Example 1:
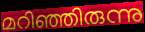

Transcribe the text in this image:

മറിഞ്ഞിരുന്നു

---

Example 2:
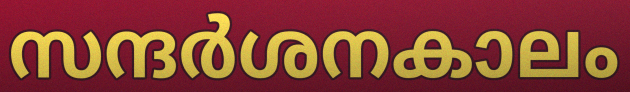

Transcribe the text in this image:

സന്ദർശനകാലം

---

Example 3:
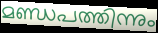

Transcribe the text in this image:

മണ്ഡപത്തിന്നും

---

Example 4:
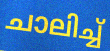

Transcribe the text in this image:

ചാലിച്ച്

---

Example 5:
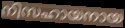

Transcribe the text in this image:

നിസഹായനായ